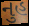
નુહ